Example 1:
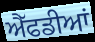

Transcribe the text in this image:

ਐੱਫਡੀਆਂ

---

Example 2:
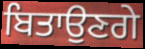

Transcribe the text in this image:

ਬਿਤਾਉਣਗੇ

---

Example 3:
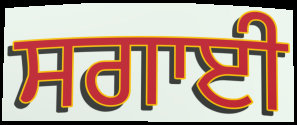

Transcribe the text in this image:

ਸਗਾਈ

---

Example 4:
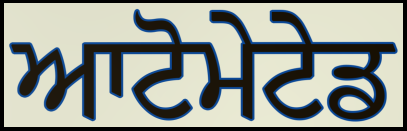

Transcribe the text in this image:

ਆਟੋਮੇਟੇਡ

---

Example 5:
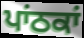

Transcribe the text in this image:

ਪਾਂਠਕਾਂ